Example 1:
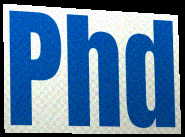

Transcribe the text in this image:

Phd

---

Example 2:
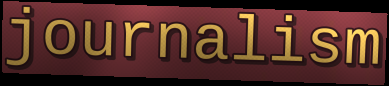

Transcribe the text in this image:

journalism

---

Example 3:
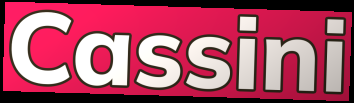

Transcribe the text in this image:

Cassini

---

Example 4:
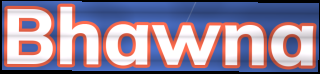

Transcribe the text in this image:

Bhawna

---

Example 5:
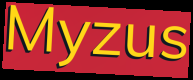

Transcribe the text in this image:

Myzus